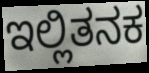
ಇಲ್ಲಿತನಕ